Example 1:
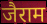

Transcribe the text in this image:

जैराम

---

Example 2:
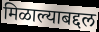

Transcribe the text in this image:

मिळाल्याबद्दल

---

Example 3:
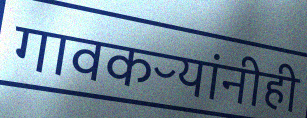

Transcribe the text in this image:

गावकऱ्यांनीही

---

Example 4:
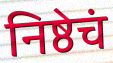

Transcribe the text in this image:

निष्ठेचं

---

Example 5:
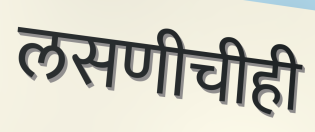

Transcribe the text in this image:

लसणीचीही